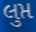
લુપ્ત